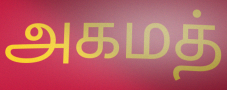
அகமத்